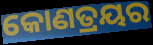
କୋଣତ୍ରୟର